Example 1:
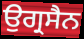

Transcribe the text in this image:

ਉਗ੍ਰਸੈਨ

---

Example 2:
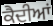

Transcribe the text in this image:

ਕੈਦੀਆਂ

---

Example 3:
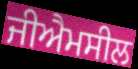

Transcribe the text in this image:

ਜੀਐਮਸੀਲ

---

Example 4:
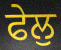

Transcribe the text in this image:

ਫੇਲੁ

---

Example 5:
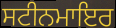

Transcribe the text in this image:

ਸਟੀਨਮਾਇਰ